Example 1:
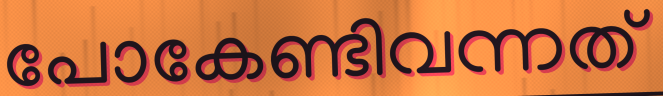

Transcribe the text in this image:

പോകേണ്ടിവന്നത്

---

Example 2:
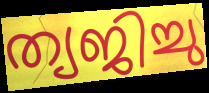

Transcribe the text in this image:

ത്യജിച്ചു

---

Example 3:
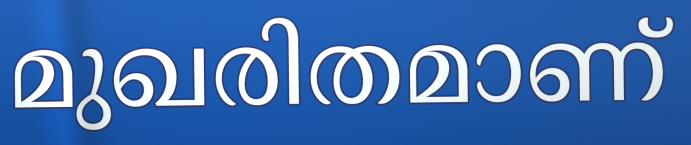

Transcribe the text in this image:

മുഖരിതമാണ്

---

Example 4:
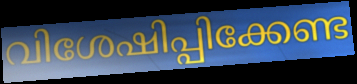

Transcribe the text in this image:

വിശേഷിപ്പിക്കേണ്ട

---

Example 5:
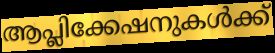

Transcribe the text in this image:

ആപ്ലിക്കേഷനുകൾക്ക്